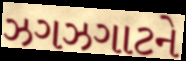
ઝગઝગાટને